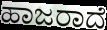
ಹಾಜರಾದೆ